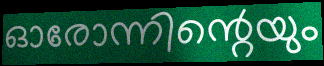
ഓരോന്നിന്റെയും